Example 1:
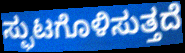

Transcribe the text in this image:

ಸ್ಫುಟಗೊಳಿಸುತ್ತದೆ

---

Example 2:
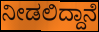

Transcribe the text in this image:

ನೀಡಲಿದ್ದಾನೆ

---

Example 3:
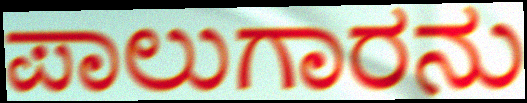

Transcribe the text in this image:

ಪಾಲುಗಾರನು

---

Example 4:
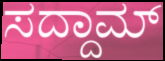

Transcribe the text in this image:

ಸದ್ದಾಮ್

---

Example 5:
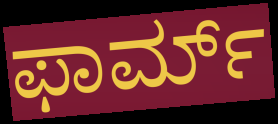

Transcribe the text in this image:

ಫಾರ್ಮ್